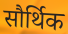
सौर्थिक